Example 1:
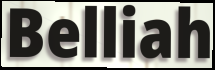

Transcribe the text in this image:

Belliah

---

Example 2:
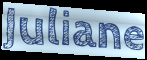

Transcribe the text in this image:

Juliane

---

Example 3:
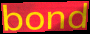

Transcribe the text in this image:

bond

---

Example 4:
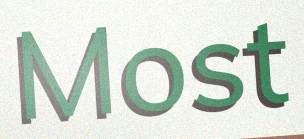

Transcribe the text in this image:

Most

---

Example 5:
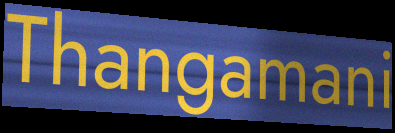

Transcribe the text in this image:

Thangamani